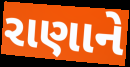
રાણાને